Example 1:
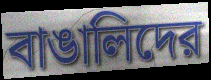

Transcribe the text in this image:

বাঙালিদের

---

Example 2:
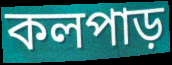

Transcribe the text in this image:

কলপাড়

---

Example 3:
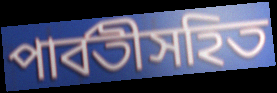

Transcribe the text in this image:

পার্বতীসহিত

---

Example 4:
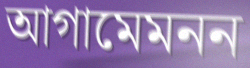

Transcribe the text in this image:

আগামেমনন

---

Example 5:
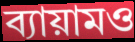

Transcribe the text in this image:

ব্যায়ামও